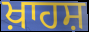
ਖ਼ਾਹਸ਼